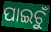
ପାଇଚୁଁ